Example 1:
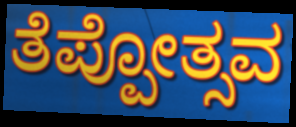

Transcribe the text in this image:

ತೆಪ್ಪೋತ್ಸವ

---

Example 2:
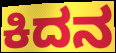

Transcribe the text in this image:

ಕಿದನ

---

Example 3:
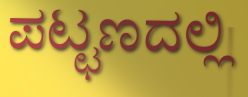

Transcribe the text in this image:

ಪಟ್ಟಣದಲ್ಲಿ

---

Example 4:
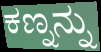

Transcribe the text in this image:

ಕಣ್ನನ್ನು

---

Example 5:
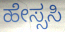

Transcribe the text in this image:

ಹೇಸ್ಸಸಿ